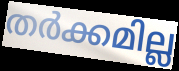
തർക്കമില്ല